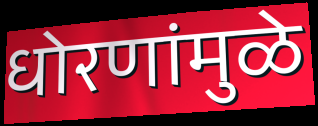
धोरणांमुळे